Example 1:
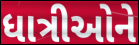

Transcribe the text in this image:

ધાત્રીઓને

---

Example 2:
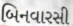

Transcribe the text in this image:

બિનવારસી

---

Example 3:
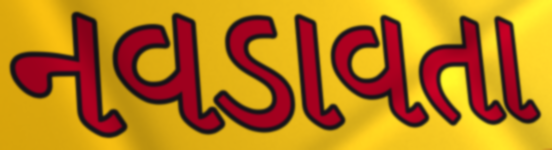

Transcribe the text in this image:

નવડાવતા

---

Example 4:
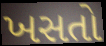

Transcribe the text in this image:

ખસતો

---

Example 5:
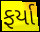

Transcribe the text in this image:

ફર્યા